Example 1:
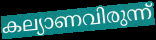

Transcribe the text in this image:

കല്യാണവിരുന്ന്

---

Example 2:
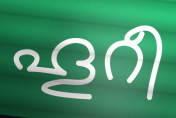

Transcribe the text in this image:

ഹൂറീ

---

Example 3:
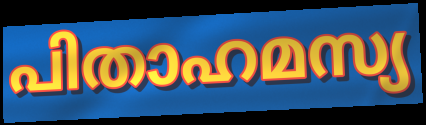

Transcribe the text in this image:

പിതാഹമസ്യ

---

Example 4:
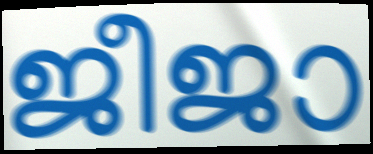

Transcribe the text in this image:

ജീജാ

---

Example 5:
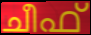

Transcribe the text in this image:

ചീഫ്